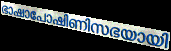
ഭാഷാപോഷിണിസഭയായി